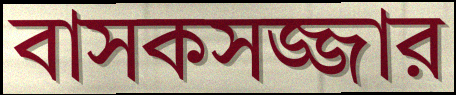
বাসকসজ্জার